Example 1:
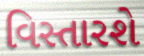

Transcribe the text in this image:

વિસ્તારશે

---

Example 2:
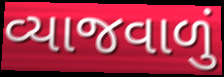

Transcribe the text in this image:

વ્યાજવાળું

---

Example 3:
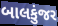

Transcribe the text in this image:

બાલકુંજર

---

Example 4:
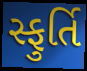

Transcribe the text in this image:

સ્ફુર્તિ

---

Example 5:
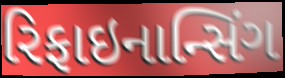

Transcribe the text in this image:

રિફાઇનાન્સિંગ